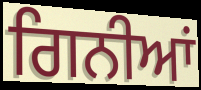
ਗਿਨੀਆਂ